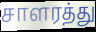
சாளரத்து